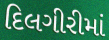
દિલગીરીમાં